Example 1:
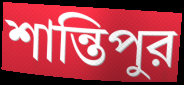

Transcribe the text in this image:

শান্তিপুর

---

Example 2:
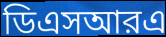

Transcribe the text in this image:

ডিএসআরএ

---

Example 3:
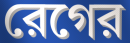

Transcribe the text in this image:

রেগের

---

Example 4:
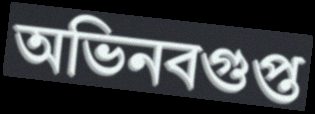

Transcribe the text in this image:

অভিনবগুপ্ত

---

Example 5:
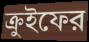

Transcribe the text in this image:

ক্রুইফের